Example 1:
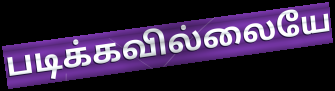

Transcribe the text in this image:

படிக்கவில்லையே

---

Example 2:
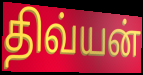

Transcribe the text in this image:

திவ்யன்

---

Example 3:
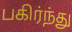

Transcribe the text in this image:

பகிர்ந்து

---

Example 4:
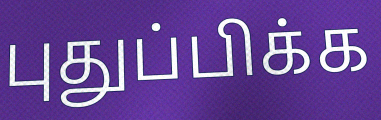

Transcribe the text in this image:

புதுப்பிக்க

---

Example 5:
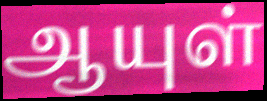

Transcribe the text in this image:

ஆயுள்